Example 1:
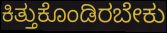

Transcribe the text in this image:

ಕಿತ್ತುಕೊಂಡಿರಬೇಕು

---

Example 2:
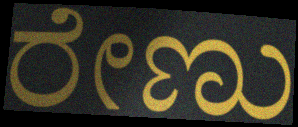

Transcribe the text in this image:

ರೇಣು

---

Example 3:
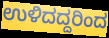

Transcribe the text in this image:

ಉಳಿದದ್ದರಿಂದ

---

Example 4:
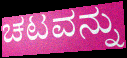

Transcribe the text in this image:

ಚಟವನ್ನು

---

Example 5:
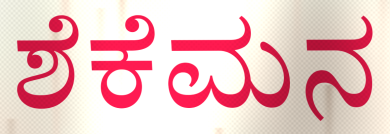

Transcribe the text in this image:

ಶೆಕೆಮನ